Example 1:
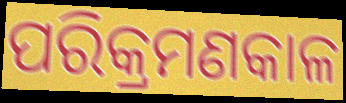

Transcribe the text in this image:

ପରିକ୍ରମଣକାଳ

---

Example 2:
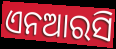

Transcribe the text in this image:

ଏନଆରସି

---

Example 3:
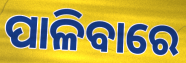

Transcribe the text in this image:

ପାଳିବାରେ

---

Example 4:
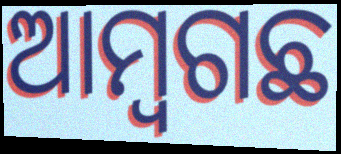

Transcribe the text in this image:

ଆମ୍ୱଗଛ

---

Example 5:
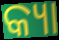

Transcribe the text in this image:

କ୍ୟା